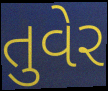
તુવેર